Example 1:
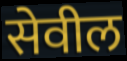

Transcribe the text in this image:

सेवील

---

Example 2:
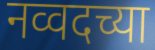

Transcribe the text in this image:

नव्वदच्या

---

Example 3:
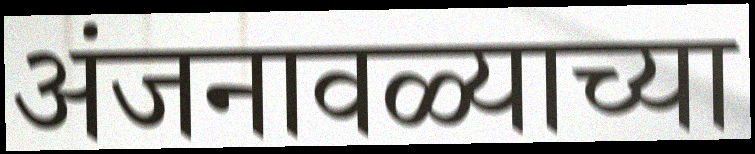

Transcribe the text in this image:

अंजनावळ्याच्या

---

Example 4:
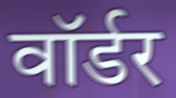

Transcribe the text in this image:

वॉर्डर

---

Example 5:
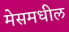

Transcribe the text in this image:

मेसमधील